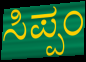
ಸಿಪ್ಪಂ